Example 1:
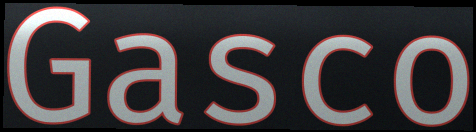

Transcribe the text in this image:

Gasco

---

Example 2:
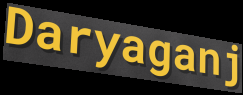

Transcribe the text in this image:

Daryaganj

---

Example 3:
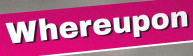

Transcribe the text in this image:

Whereupon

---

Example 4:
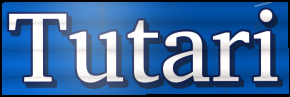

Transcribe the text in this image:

Tutari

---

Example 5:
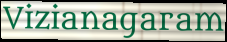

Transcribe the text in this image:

Vizianagaram